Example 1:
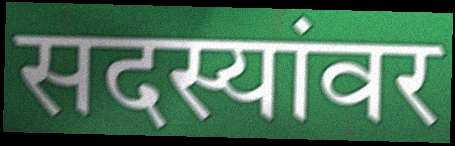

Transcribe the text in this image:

सदस्यांवर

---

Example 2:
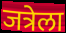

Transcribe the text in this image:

जत्रेला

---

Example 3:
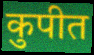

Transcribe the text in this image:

कुपीत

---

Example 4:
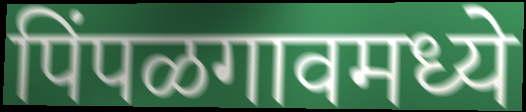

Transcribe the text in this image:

पिंपळगावमध्ये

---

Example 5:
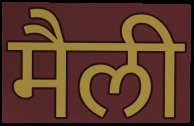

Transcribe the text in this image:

मैली